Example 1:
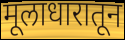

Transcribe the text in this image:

मूलाधारातून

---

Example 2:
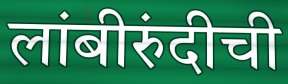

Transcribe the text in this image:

लांबीरुंदीची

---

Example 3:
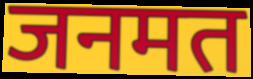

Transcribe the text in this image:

जनमत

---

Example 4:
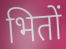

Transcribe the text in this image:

भितों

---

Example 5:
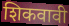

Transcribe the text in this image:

शिकवावी